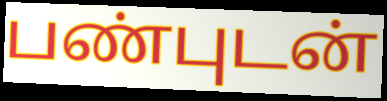
பண்புடன்